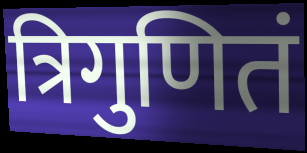
त्रिगुणितं